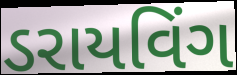
ડરાયવિંગ